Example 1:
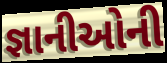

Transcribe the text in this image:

જ્ઞાનીઓની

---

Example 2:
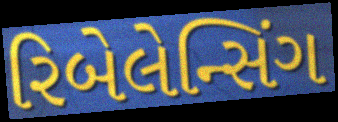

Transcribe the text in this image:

રિબેલેન્સિંગ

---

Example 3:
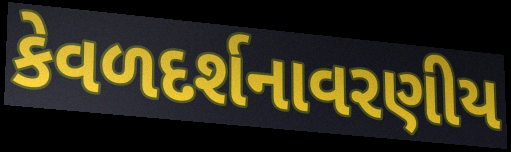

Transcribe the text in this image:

કેવળદર્શનાવરણીય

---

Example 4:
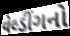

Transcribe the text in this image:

વેલ્ડીંગનો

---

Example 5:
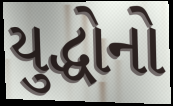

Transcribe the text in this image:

યુદ્ધોનો